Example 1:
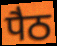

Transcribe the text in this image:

पैठ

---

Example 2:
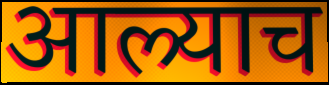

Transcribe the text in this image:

आल्याच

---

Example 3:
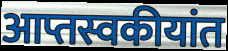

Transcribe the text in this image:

आप्तस्वकीयांत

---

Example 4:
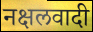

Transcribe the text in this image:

नक्षलवादी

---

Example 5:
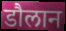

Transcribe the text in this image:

डौलान